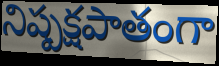
నిష్పక్షపాతంగా